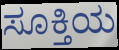
ಸೂಕ್ತಿಯ